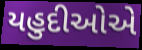
યહુદીઓએ